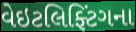
વેઇટલિફ્ટિંગના